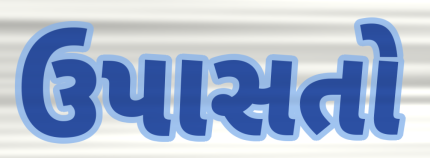
ઉપાસતો